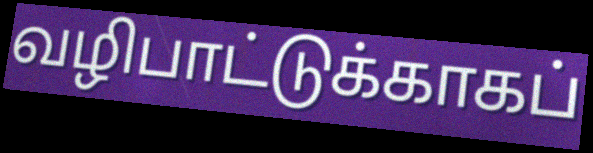
வழிபாட்டுக்காகப்